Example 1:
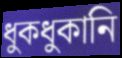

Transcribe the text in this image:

ধুকধুকানি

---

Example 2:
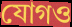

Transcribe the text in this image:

যোগও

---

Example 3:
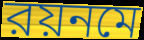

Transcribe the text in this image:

রয়নমে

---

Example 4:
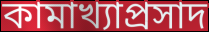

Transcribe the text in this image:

কামাখ্যাপ্রসাদ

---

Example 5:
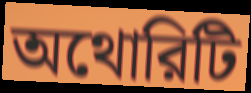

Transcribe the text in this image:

অথোরিটি